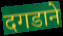
दगडाने